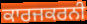
ਕਾਰਜਕਰਨੀ